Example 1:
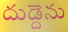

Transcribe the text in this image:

దుడ్దెను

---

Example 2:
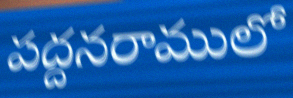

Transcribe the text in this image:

పద్దనరాములో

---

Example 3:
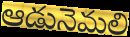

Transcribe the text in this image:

ఆడునెమలి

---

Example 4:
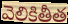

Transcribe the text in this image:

వెలికితీత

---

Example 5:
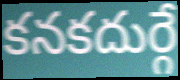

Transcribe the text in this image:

కనకదుర్గే